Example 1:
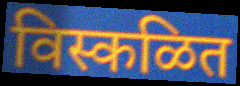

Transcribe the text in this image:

विस्कळित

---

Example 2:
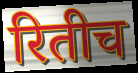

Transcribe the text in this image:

रितीच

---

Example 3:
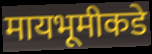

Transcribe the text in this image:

मायभूमीकडे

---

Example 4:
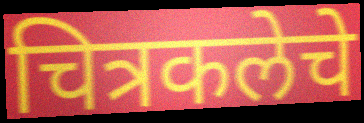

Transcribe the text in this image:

चित्रकलेचे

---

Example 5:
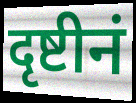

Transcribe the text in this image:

दृष्टीनं